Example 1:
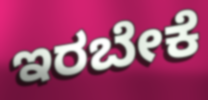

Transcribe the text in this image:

ಇರಬೇಕೆ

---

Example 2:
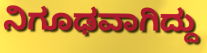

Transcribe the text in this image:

ನಿಗೂಢವಾಗಿದ್ದು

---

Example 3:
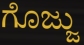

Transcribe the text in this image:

ಗೊಜ್ಜು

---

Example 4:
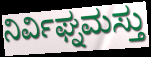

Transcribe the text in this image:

ನಿರ್ವಿಘ್ನಮಸ್ತು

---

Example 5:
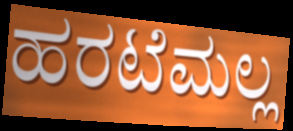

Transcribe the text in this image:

ಹರಟೆಮಲ್ಲ